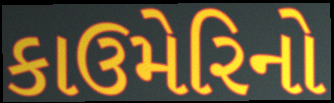
કાઉમેરિનો